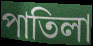
পাতিলা